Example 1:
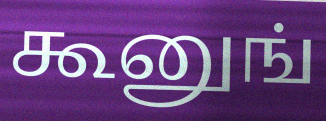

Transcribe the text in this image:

கூனுங்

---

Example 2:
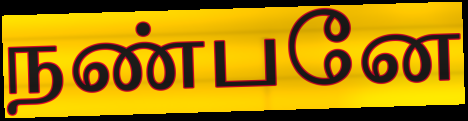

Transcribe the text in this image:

நண்பனே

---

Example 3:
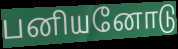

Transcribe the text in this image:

பனியனோடு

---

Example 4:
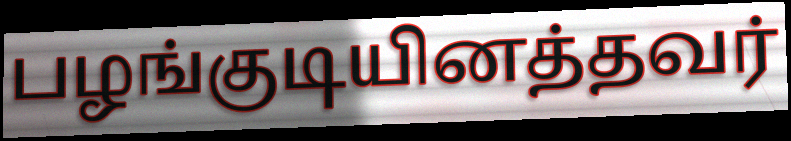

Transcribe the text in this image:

பழங்குடியினத்தவர்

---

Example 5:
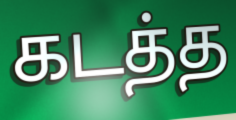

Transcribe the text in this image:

கடத்த